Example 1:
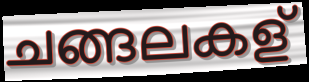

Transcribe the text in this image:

ചങ്ങലകള്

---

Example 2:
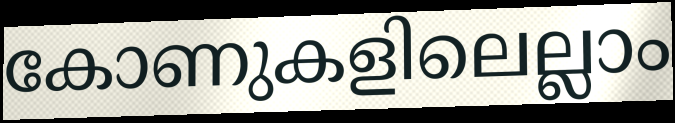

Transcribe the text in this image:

കോണുകളിലെല്ലാം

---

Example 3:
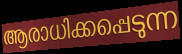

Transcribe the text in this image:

ആരാധിക്കപ്പെടുന്ന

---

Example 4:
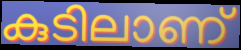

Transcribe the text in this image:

കുടിലാണ്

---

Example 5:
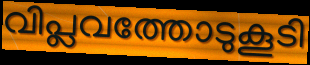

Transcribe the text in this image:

വിപ്ലവത്തോടുകൂടി